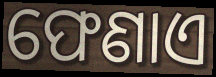
ଫେଣାଏ